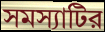
সমস্যাটির